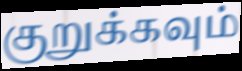
குறுக்கவும்